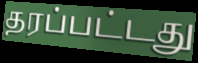
தரப்பட்டது